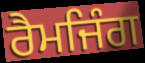
ਰੈਮਜਿੰਗ